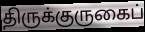
திருக்குருகைப்